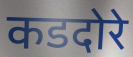
कडदोरे